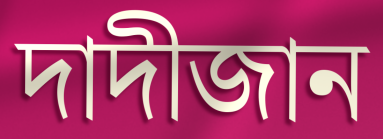
দাদীজান